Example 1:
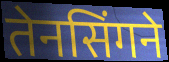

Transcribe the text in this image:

तेनसिंगने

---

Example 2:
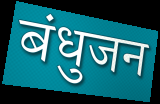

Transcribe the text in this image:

बंधुजन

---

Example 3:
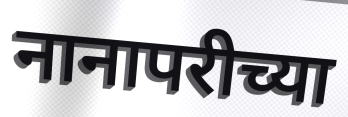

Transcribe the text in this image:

नानापरीच्या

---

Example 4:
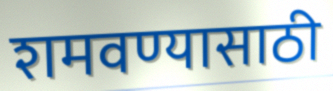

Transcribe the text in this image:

शमवण्यासाठी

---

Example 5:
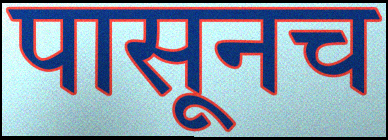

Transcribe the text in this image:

पासूनच